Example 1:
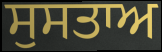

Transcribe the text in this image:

ਸੁਸਤਾਅ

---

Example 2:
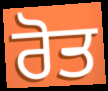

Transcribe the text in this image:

ਰੋਤ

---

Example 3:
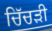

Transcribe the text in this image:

ਚਿੱਚੜੀ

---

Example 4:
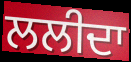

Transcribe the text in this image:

ਲਲੀਦਾ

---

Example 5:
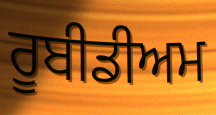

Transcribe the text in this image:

ਰੂਬੀਡੀਅਮ